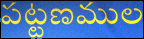
పట్టణముల